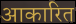
आकारित